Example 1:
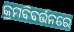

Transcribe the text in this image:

କ୍ରମବିବର୍ତ୍ତନରେ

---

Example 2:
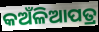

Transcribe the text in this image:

କଅଁଳିଆପତ୍ର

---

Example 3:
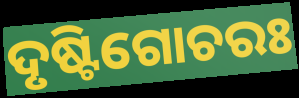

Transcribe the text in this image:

ଦୃଷ୍ଟିଗୋଚରଃ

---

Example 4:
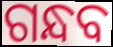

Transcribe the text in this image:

ଗନ୍ଧବ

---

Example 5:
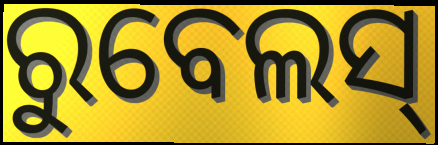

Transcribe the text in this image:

ରୁବେଲସ୍